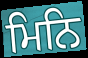
ਮਿਨਿ